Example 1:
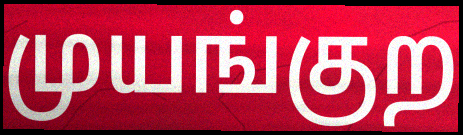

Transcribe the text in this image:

முயங்குற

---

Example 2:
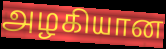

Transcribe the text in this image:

அழகியான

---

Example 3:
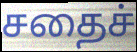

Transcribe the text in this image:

சதைச்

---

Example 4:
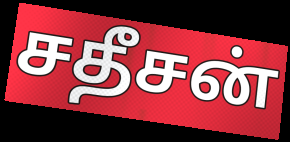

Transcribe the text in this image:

சதீசன்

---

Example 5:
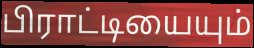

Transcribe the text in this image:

பிராட்டியையும்